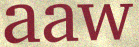
aaw